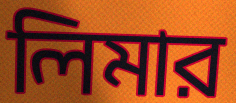
লিমার